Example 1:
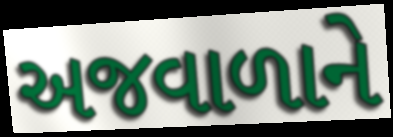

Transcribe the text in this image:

અજવાળાને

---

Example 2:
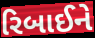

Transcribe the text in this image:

રિબાઈને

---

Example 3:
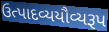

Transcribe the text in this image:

ઉત્પાદવ્યયૌવ્યરૂપ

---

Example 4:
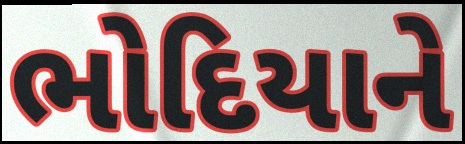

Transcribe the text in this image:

ભોદિયાને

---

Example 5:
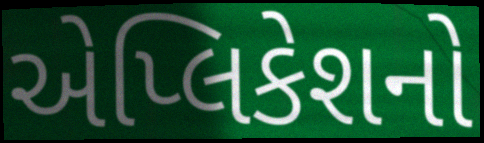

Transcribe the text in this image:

એપ્લિકેશનો